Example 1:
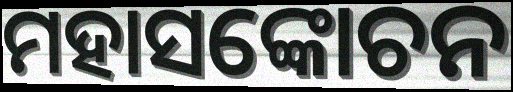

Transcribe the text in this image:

ମହାସଙ୍କୋଚନ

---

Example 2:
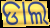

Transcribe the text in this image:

ଡାଲ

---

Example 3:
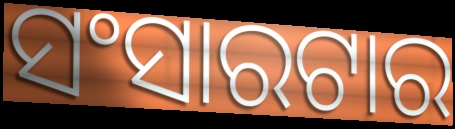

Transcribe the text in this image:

ସଂସାରଟାର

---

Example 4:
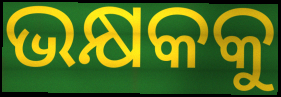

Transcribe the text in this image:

ଭକ୍ଷକକୁ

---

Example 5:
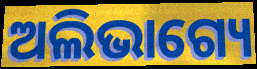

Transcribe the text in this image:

ଅଲିଭାଗ୍ୟେ